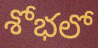
శోభలో